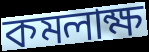
কমলাক্ষ